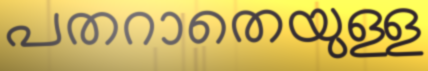
പതറാതെയുള്ള